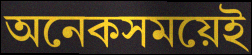
অনেকসময়েই